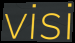
visi